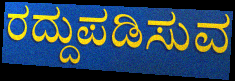
ರದ್ದುಪಡಿಸುವ